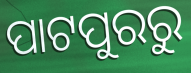
ପାଟପୁରରୁ